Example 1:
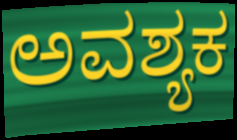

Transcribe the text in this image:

ಅವಶ್ಯಕ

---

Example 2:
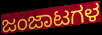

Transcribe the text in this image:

ಜಂಜಾಟಗಳ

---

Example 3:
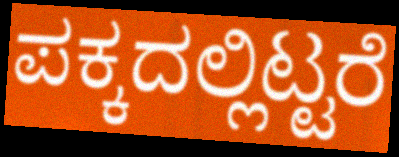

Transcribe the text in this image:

ಪಕ್ಕದಲ್ಲಿಟ್ಟರೆ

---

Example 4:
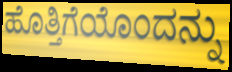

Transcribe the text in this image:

ಹೊತ್ತಿಗೆಯೊಂದನ್ನು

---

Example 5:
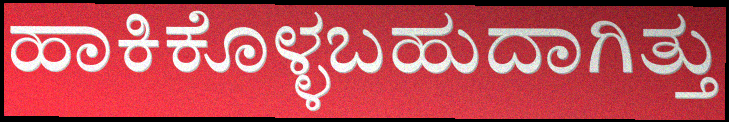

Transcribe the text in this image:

ಹಾಕಿಕೊಳ್ಳಬಹುದಾಗಿತ್ತು